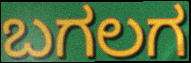
ಬಗಲಗ